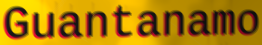
Guantanamo